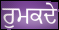
ਰੁਮਕਦੇ